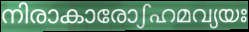
നിരാകാരോഽഹമവ്യയഃ